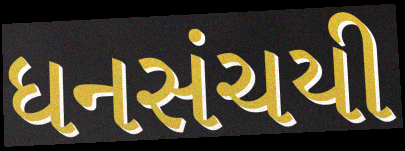
ધનસંચયી